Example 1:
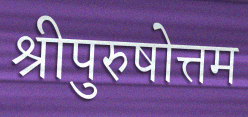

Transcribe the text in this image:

श्रीपुरुषोत्तम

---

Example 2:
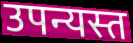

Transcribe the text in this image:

उपन्यस्त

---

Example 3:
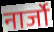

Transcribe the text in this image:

नार्जो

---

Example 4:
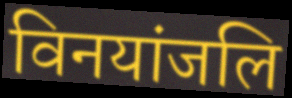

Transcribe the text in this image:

विनयांजलि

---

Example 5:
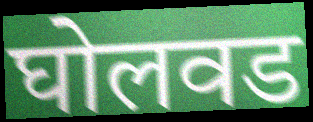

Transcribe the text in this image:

घोलवड